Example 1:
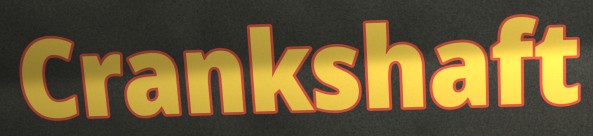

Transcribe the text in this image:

Crankshaft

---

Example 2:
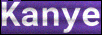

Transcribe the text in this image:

Kanye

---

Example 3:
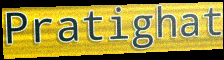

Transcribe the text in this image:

Pratighat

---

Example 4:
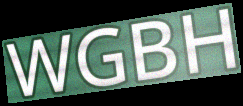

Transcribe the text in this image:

WGBH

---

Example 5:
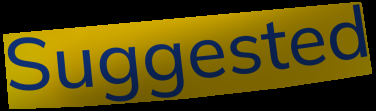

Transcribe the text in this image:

Suggested